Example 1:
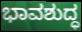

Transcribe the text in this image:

ಭಾವಶುದ್ಧ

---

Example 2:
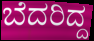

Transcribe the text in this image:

ಬೆದರಿದ್ದ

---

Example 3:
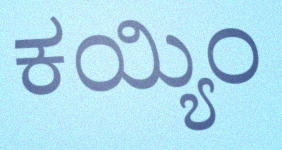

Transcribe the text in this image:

ಕಯ್ಯಿಂ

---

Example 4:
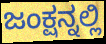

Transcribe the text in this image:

ಜಂಕ್ಷನ್ನಲ್ಲಿ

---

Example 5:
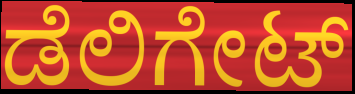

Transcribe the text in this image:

ಡೆಲಿಗೇಟ್